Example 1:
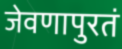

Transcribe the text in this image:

जेवणापुरतं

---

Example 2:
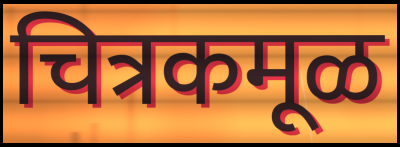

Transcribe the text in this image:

चित्रकमूळ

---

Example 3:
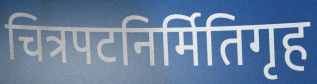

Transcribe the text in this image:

चित्रपटनिर्मितिगृह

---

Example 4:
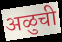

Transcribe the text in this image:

अळुची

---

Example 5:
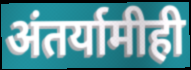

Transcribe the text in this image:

अंतर्यामीही